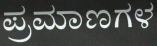
ಪ್ರಮಾಣಗಳ